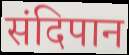
संदिपान